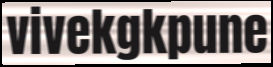
vivekgkpune